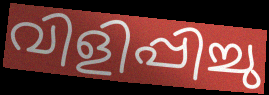
വിളിപ്പിച്ചു